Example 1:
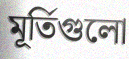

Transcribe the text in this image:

মূর্তিগুলো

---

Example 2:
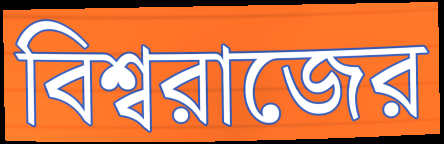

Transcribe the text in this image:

বিশ্বরাজের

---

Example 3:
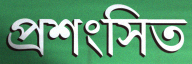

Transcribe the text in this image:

প্রশংসিত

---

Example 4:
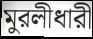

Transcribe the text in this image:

মুরলীধারী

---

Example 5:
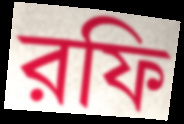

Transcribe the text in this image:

রফি